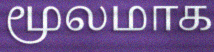
மூலமாக